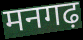
मनगढ़